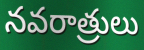
నవరాత్రులు